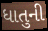
ધાતુની